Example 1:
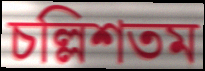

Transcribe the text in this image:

চল্লিশতম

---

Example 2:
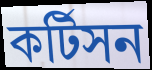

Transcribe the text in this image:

কর্টিসন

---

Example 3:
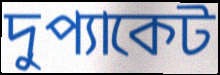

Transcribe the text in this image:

দুপ্যাকেট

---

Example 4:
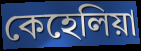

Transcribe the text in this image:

কেহেলিয়া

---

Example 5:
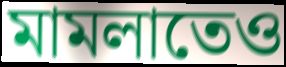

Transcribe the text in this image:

মামলাতেও